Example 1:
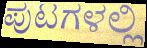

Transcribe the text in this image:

ಪುಟಗಳಲ್ಲಿ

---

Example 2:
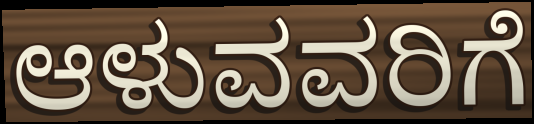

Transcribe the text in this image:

ಆಳುವವರಿಗೆ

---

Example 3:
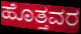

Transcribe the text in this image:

ಹೊತ್ತವರ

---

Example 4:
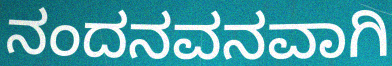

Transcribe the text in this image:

ನಂದನವನವಾಗಿ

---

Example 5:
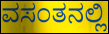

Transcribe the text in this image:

ವಸಂತನಲ್ಲಿ